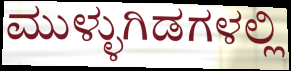
ಮುಳ್ಳುಗಿಡಗಳಲ್ಲಿ